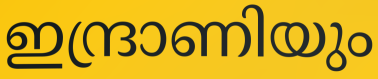
ഇന്ദ്രാണിയും